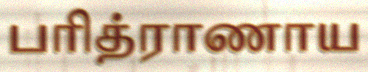
பரித்ராணாய